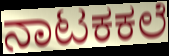
ನಾಟಕಕಲೆ